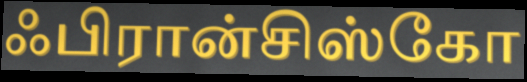
ஃபிரான்சிஸ்கோ